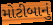
મોટીબાનું